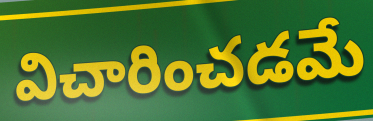
విచారించడమే